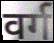
वर्ग